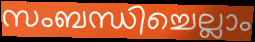
സംബന്ധിച്ചെല്ലാം